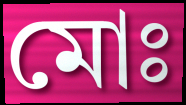
মোঃ